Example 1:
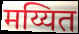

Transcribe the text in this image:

मय्यित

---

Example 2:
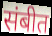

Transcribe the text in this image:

संबीत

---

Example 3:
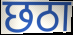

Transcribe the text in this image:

छठा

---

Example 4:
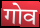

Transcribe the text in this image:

गोव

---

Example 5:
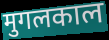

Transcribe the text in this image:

मुगलकाल